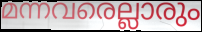
മന്നവരെല്ലാരും